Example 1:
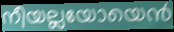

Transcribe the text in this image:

നീയല്ലയോയെൻ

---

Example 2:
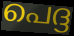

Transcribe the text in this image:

പെദ്ദ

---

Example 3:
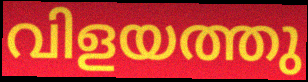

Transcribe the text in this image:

വിളയത്തു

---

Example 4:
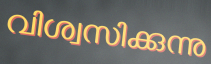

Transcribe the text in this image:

വിശ്വസിക്കുന്നു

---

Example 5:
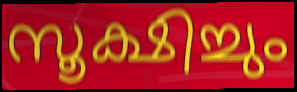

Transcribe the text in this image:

സൂക്ഷിച്ചും